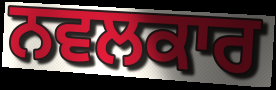
ਨਵਲਕਾਰ